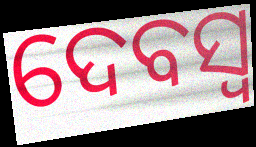
ଦେବସ୍ୱ